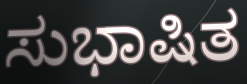
ಸುಭಾಷಿತ